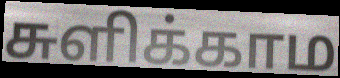
சுளிக்காம